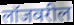
लॉजवरील